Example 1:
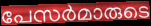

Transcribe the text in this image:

പേസർമാരുടെ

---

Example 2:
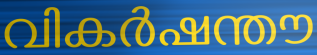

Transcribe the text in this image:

വികർഷന്തൗ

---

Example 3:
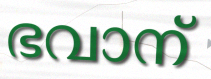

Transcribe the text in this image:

ഭവാന്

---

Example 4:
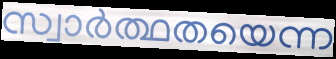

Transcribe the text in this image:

സ്വാർത്ഥതയെന്ന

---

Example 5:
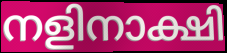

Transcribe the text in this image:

നളിനാക്ഷി